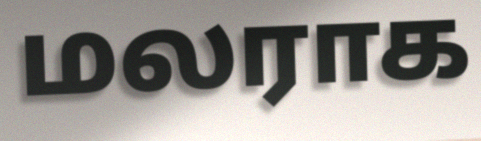
மலராக